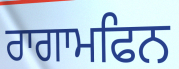
ਰਾਗਾਮਫਿਨ